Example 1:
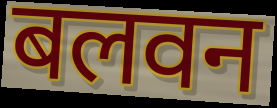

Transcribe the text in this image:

बलवन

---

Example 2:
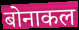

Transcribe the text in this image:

बोनाकल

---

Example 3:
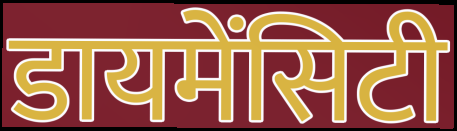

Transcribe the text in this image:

डायमेंसिटी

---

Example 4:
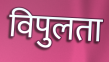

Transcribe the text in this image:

विपुलता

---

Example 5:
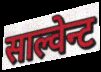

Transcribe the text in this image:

साल्वेन्ट